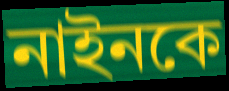
নাইনকে